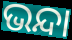
ଭନ୍ଦା